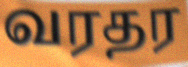
வரதர